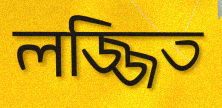
লজ্জিত